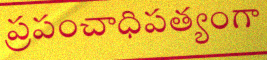
ప్రపంచాధిపత్యంగా